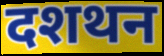
दशथन